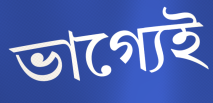
ভাগ্যেই